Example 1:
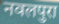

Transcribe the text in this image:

नवलपुरा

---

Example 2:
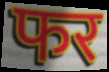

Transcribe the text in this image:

फर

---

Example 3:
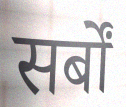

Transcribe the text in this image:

सर्बों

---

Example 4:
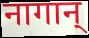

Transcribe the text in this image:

नागान्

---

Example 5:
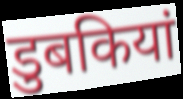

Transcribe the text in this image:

डुबकियां